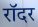
रॉदर